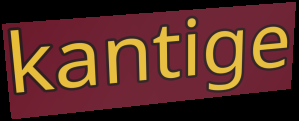
kantige